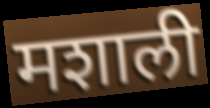
मशाली